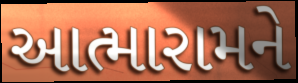
આત્મારામને